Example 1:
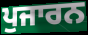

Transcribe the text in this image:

ਪੁਜਾਰਨ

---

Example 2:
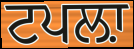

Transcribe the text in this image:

ਟਪਲ਼ਾ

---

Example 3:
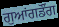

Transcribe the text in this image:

ਗੁਆਂਗਡੌਂਗ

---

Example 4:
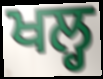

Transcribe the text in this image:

ਖਲ੍ਹ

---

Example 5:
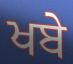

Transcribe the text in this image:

ਖਬੇ